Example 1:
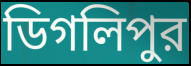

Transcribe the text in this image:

ডিগলিপুর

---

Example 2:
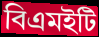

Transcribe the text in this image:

বিএমইটি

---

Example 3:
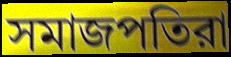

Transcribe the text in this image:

সমাজপতিরা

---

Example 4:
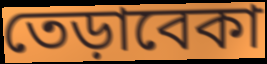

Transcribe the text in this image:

তেড়াবেকা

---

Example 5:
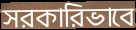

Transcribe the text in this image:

সরকারিভাবে